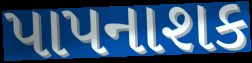
પાપનાશક